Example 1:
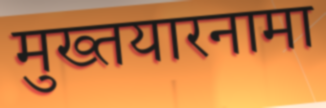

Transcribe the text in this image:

मुख्तयारनामा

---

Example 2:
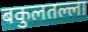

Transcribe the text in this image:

बकुलतल्ला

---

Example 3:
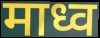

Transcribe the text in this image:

माध्व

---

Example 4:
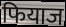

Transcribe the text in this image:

फियाज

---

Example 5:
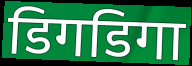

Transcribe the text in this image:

डिगडिगा